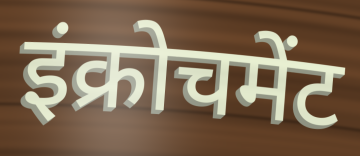
इंक्रोचमेंट